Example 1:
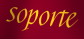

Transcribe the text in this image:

soporte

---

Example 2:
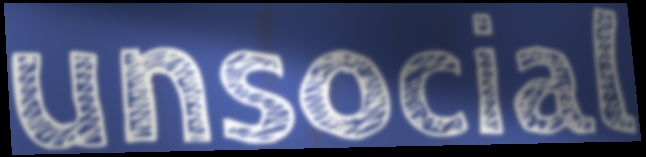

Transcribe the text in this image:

unsocial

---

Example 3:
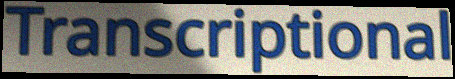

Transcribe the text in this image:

Transcriptional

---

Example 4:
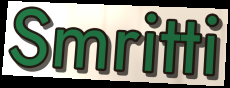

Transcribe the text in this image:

Smritti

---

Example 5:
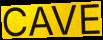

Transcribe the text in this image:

CAVE